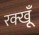
रक्खूँ